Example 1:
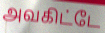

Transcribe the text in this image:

அவகிட்டே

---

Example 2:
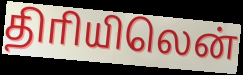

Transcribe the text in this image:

திரியிலென்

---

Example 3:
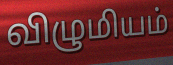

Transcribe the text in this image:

விழுமியம்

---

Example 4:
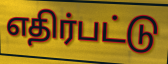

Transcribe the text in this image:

எதிர்பட்டு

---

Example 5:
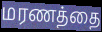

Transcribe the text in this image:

மரணத்தை